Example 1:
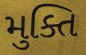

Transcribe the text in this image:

મુક્તિ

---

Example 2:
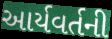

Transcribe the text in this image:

આર્યવર્તની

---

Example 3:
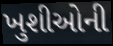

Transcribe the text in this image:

ખુશીઓની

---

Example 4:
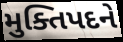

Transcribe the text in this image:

મુક્તિપદને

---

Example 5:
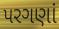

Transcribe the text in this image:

પરગણાં